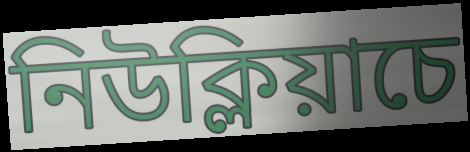
নিউক্লিয়াচে